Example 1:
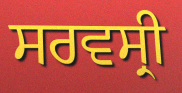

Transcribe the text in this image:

ਸਰਵਸ੍ਰੀ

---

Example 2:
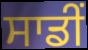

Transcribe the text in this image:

ਸਾਡੀਂ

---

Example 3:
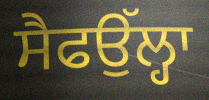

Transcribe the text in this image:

ਸੈਫਉੱਲ੍ਹਾ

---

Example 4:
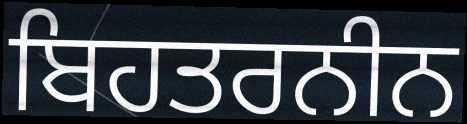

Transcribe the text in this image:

ਬਿਹਤਰਨੀਨ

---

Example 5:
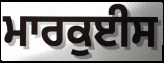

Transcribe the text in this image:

ਮਾਰਕੁਈਸ